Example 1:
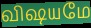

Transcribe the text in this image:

விஷயமே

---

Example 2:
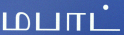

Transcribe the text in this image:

மபாட்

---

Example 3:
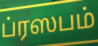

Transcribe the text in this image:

ப்ரஸபம்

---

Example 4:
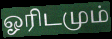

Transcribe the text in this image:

ஓரிடமும்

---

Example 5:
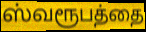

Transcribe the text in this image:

ஸ்வரூபத்தை